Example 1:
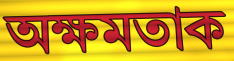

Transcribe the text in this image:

অক্ষমতাক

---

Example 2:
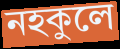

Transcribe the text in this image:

নহকুলে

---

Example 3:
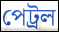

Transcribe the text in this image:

পেট্ৰল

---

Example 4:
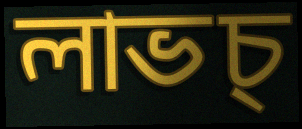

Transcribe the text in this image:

লাভচ্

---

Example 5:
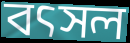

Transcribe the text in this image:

বৎসল